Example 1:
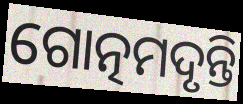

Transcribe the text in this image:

ଗୋତ୍ନମଦୃନ୍ତି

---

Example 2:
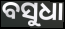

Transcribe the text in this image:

ବସୁଧା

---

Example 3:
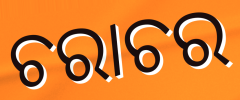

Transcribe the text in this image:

ଚରାଚର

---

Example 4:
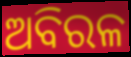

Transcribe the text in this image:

ଅବିରଳ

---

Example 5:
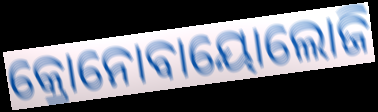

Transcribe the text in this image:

କ୍ରୋନୋବାୟୋଲୋଜି